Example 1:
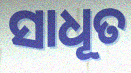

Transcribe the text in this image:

ସାଧୂତ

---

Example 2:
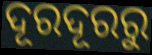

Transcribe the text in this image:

ଦୂରଦୂରରୁ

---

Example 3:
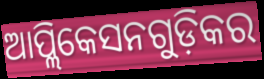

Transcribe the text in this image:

ଆପ୍ଲିକେସନଗୁଡ଼ିକର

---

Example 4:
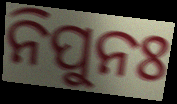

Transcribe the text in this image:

ନିପୁନଃ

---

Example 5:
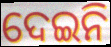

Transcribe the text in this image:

ଦେଇନି